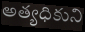
అత్యధికుని